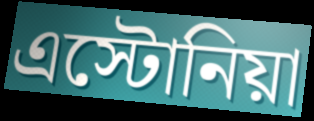
এস্টোনিয়া